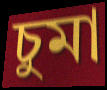
চুমা